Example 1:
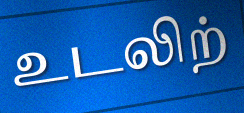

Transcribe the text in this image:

உடலிற்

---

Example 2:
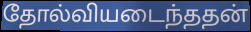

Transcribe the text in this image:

தோல்வியடைந்ததன்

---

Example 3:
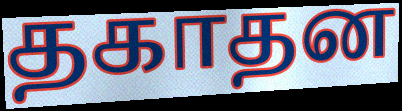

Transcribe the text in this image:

தகாதன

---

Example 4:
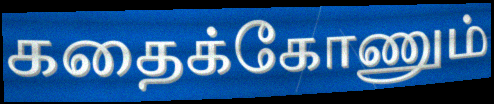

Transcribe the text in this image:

கதைக்கோணும்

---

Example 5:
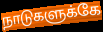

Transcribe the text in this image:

நாடுகளுக்கே